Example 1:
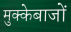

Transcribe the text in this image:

मुक्केबाजों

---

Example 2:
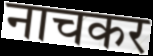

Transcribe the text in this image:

नाचकर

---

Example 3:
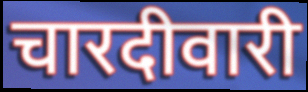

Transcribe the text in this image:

चारदीवारी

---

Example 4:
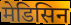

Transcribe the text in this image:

मेडिसिन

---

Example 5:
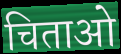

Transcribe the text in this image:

चिताओ